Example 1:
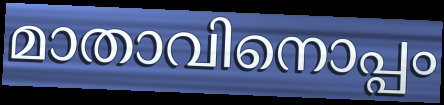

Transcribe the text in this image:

മാതാവിനൊപ്പം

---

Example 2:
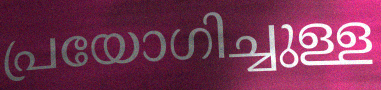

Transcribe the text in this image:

പ്രയോഗിച്ചുള്ള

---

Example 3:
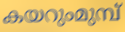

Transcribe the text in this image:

കയറുംമുമ്പ്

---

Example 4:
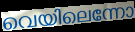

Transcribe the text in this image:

വെയിലെന്നോ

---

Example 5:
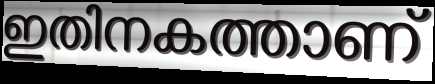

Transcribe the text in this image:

ഇതിനകത്താണ്